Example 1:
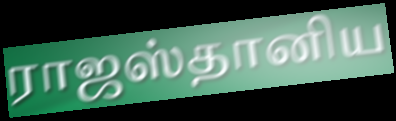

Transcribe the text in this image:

ராஜஸ்தானிய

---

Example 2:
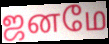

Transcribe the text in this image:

ஜனமே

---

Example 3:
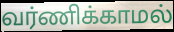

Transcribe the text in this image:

வர்ணிக்காமல்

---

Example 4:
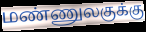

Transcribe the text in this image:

மண்ணுலகுக்கு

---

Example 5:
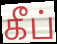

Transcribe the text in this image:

கீப்